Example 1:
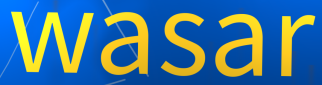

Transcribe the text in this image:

wasar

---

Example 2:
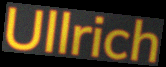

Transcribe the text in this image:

Ullrich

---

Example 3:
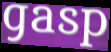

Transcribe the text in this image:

gasp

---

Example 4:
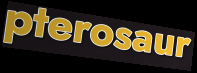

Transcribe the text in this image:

pterosaur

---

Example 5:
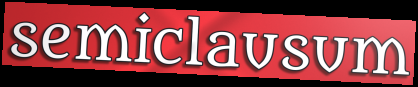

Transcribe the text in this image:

semiclausum